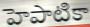
హెపాటికా